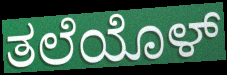
ತಲೆಯೊಳ್